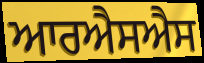
ਆਰਐਸਐਸ